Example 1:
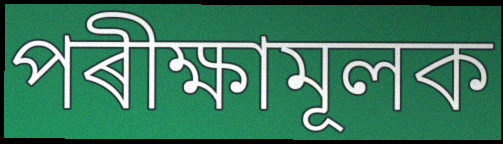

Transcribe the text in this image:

পৰীক্ষামূলক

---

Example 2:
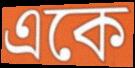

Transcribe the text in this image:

একে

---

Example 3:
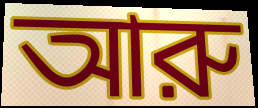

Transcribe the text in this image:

আৰু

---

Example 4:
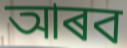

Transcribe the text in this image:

আৰব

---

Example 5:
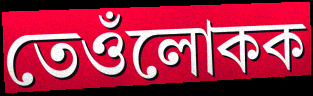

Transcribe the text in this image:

তেওঁলোকক